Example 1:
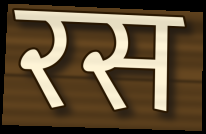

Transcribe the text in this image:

रस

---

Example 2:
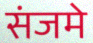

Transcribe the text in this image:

संजमे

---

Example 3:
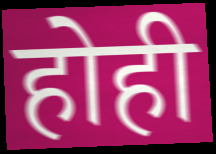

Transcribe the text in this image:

होही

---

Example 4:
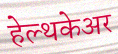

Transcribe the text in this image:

हेल्थकेअर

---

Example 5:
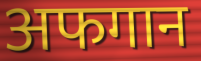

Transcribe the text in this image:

अफगान